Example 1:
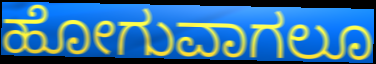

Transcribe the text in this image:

ಹೋಗುವಾಗಲೂ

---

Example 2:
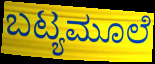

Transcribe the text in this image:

ಬಟ್ಯಮೂಲೆ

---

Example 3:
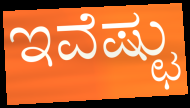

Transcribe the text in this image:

ಇವೆಷ್ಟು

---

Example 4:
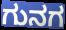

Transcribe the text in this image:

ಗುನಗ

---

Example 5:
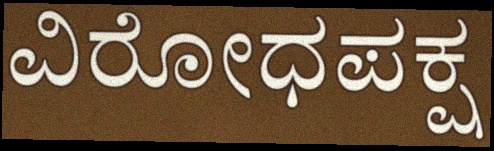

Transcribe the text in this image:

ವಿರೋಧಪಕ್ಷ